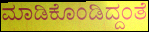
ಮಾಡಿಕೊಂಡಿದ್ದಂತೆ